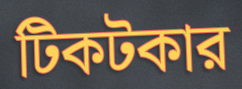
টিকটকার